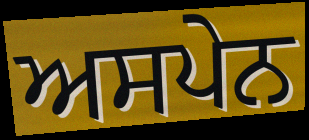
ਅਸਪੇਨ